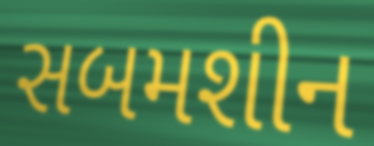
સબમશીન